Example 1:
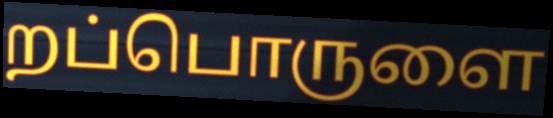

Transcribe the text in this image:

றப்பொருளை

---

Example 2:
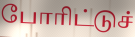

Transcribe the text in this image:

போரிட்டுச்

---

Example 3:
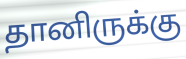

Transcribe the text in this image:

தானிருக்கு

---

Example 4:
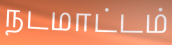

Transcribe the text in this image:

நடமாட்டம்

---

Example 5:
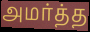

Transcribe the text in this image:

அமர்த்த